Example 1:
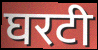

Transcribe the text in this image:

घरटी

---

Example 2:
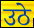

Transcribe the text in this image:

उठे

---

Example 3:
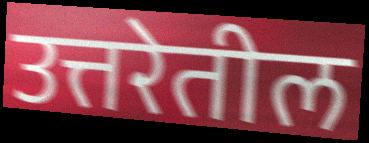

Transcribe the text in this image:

उत्तरेतील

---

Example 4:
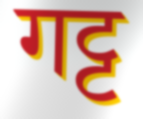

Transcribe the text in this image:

गट्ट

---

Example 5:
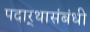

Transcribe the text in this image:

पदार्थासंबंधी